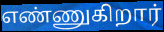
எண்ணுகிறார்